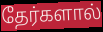
தேர்களால்